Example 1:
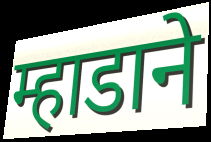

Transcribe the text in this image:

म्हाडाने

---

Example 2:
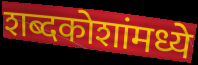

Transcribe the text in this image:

शब्दकोशांमध्ये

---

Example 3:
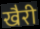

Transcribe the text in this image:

खैरी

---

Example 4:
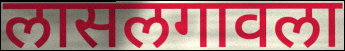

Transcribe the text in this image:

लासलगावला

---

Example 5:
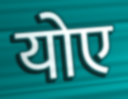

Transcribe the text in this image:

योए